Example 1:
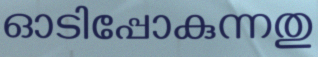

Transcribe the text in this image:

ഓടിപ്പോകുന്നതു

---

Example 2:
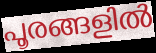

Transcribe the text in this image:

പൂരങ്ങളിൽ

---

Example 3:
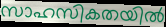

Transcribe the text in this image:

സാഹസികതയിൽ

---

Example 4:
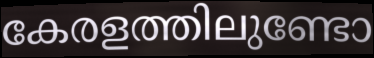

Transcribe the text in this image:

കേരളത്തിലുണ്ടോ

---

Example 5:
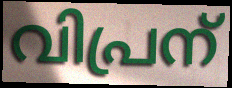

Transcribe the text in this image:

വിപ്രന്